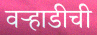
वऱ्हाडीची